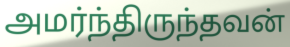
அமர்ந்திருந்தவன்